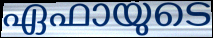
ഏഫായുടെ